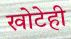
खोटेही